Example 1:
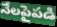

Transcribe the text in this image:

నేలపైపడి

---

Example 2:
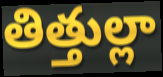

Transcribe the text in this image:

తిత్తుల్లా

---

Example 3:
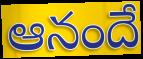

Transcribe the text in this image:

ఆనందే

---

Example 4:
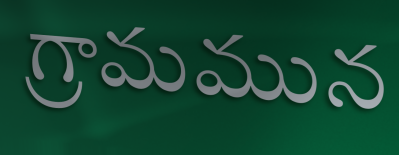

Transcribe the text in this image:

గ్రామమున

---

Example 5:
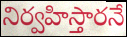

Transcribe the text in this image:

నిర్వహిస్తారనే